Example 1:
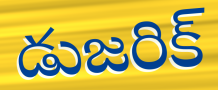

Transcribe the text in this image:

డుజరిక్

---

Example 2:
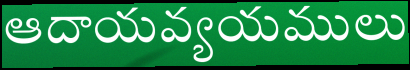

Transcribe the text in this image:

ఆదాయవ్యయములు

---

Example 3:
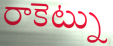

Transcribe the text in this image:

రాకెట్ను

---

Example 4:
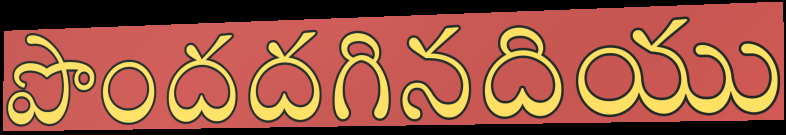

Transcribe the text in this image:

పొందదగినదియు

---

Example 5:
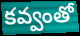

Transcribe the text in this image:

కవ్వంతో